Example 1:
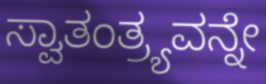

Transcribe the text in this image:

ಸ್ವಾತಂತ್ರ್ಯವನ್ನೇ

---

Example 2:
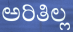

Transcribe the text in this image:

ಅರಿತಿಲ್ಲ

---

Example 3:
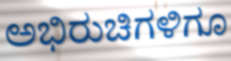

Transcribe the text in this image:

ಅಭಿರುಚಿಗಳಿಗೂ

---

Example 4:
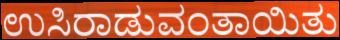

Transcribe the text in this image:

ಉಸಿರಾಡುವಂತಾಯಿತು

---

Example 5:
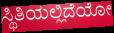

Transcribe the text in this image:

ಸ್ಥಿತಿಯಲ್ಲಿದೆಯೋ